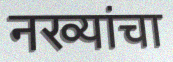
नख्यांचा